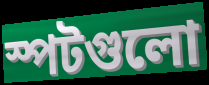
স্পটগুলো